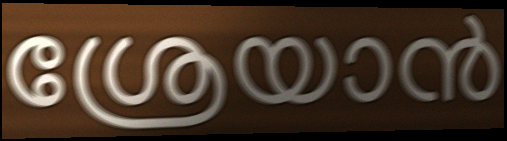
ശ്രേയാൻ